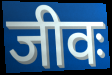
जीवः